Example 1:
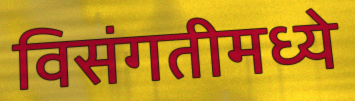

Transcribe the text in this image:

विसंगतीमध्ये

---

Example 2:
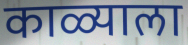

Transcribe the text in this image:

काळ्याला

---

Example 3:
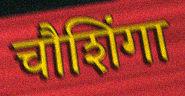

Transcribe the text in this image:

चौशिंगा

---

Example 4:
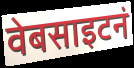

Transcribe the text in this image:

वेबसाइटनं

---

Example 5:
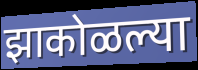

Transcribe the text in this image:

झाकोळल्या